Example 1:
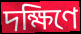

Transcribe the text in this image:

দক্ষিণে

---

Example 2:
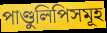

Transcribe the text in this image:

পাণ্ডুলিপিসমূহ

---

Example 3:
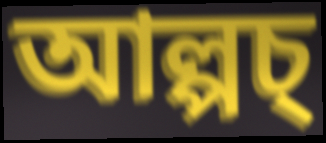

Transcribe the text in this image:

আল্পচ্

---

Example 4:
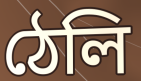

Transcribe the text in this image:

ঠেলি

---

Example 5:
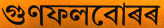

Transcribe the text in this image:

গুণফলবোৰৰ